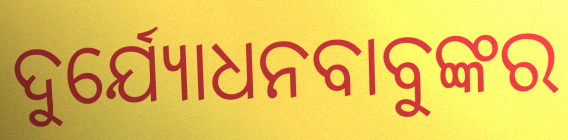
ଦୁର୍ଯ୍ୟୋଧନବାବୁଙ୍କର